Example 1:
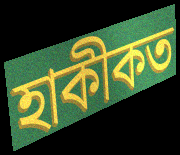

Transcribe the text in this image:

হাকীকত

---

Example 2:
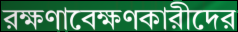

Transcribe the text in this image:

রক্ষণাবেক্ষণকারীদের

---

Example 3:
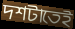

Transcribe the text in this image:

দশটাতেই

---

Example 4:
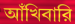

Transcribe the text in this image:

আঁখিবারি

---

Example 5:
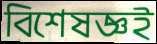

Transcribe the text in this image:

বিশেষজ্ঞই